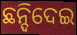
ଛନ୍ଦିଦେଇ